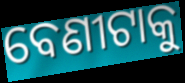
ବେଣୀଟାକୁ